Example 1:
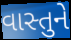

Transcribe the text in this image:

વાસ્તુને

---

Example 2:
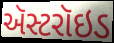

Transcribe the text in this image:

ઍસ્ટરૉઇડ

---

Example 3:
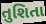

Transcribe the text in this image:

તુશિતા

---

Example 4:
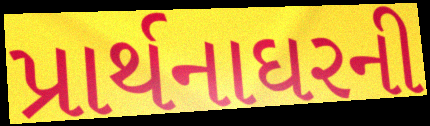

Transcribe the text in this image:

પ્રાર્થનાઘરની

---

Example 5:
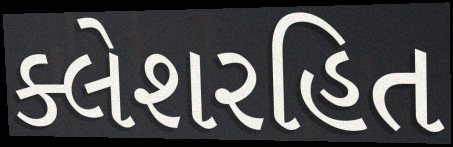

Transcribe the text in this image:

ક્લેશરહિત